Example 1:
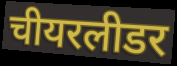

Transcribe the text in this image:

चीयरलीडर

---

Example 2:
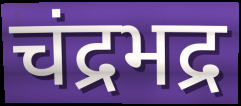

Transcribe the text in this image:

चंद्रभद्र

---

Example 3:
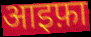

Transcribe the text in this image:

आइफ़ा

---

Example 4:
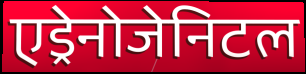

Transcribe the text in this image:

एड्रेनोजेनिटल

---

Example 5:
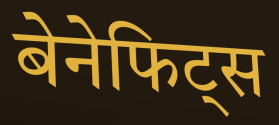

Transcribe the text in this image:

बेनेफिट्स